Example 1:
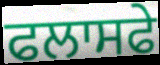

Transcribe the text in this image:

ਫਲਾਸਫੇ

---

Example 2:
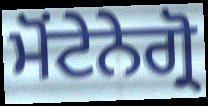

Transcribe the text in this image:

ਮੋਂਟੇਨੇਗ੍ਰੋ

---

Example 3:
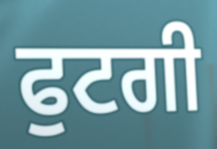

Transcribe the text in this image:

ਫੁਟਗੀ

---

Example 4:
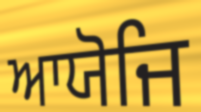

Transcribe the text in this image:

ਆਯੋਜਿ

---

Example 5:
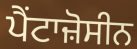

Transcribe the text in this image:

ਪੈਂਟਾਜ਼ੋਸੀਨ